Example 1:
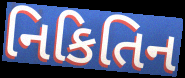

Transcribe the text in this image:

નિકિતિન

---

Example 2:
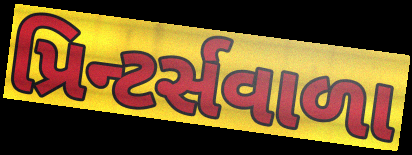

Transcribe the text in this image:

પ્રિન્ટર્સવાળા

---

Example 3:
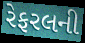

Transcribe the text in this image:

રેફરલની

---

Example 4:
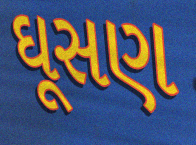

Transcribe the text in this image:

ઘૂસણ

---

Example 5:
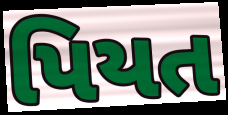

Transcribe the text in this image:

પિયત